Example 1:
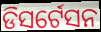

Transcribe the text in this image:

ଡିସର୍ଟେସନ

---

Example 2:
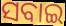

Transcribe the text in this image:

ସବାଇ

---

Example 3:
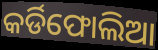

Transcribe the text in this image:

କର୍ଡିଫୋଲିଆ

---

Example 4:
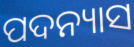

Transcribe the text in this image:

ପଦନ୍ୟାସ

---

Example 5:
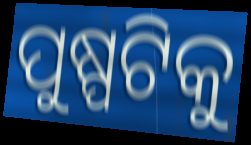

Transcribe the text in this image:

ପୁଷ୍ପଟିକୁ